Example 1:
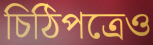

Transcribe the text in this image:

চিঠিপত্রেও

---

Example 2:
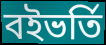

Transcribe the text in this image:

বইভর্তি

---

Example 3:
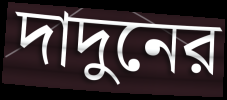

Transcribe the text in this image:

দাদুনের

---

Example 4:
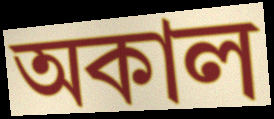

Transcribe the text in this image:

অকাল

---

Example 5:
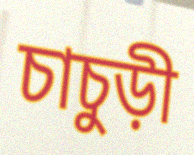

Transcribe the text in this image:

চাচুড়ী